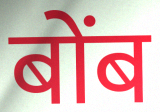
बोंब